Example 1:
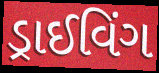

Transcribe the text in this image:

ડ્રાઈવિંગ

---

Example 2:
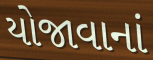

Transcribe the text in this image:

યોજાવાનાં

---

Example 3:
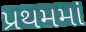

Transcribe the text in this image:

પ્રથમમાં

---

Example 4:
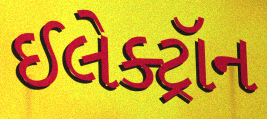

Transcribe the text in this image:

ઈલેક્ટ્રૉન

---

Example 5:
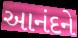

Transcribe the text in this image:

આનંદને